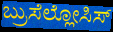
ಬ್ರುಸೆಲ್ಲೋಸಿಸ್